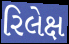
રિલેક્ષ